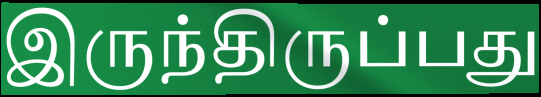
இருந்திருப்பது